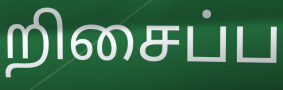
றிசைப்ப